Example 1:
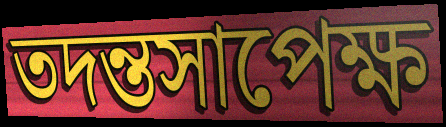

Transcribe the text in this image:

তদন্তসাপেক্ষ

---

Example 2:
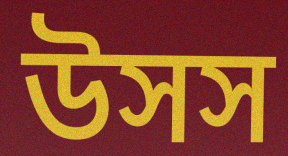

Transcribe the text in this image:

উসস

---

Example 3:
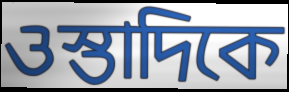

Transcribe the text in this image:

ওস্তাদিকে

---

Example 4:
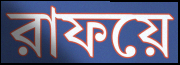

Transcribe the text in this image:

রাফয়ে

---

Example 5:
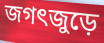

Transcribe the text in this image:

জগৎজুড়ে